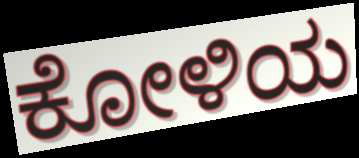
ಕೋಳಿಯ